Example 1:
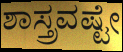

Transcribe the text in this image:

ಶಾಸ್ತ್ರವಷ್ಟೇ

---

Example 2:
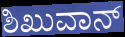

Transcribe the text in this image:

ಶಿಖುವಾನ್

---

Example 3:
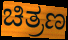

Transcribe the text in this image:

ಚಿತ್ರಣ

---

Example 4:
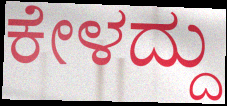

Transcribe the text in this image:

ಕೇಳದ್ದು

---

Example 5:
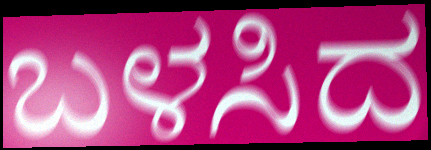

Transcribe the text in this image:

ಬಳಸಿದ